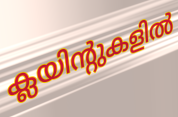
ക്ലയിന്റുകളിൽ